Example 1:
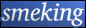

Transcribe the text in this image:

smeking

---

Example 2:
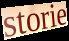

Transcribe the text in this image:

storie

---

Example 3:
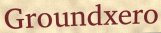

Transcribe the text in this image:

Groundxero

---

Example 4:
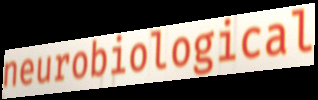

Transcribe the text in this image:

neurobiological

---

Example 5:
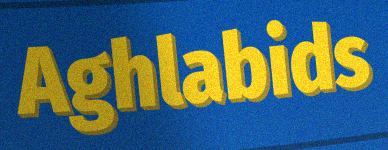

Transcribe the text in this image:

Aghlabids